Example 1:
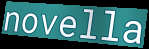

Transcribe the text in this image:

novella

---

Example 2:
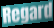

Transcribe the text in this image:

Regard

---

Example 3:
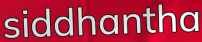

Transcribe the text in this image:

siddhantha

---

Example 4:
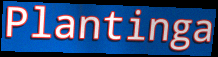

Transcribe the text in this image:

Plantinga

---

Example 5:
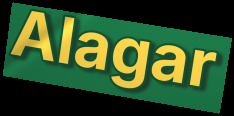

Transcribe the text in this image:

Alagar